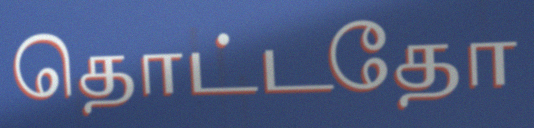
தொட்டதோ